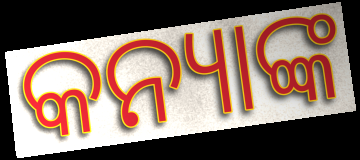
କନ୍ୟାଙ୍କ